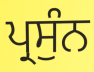
ਪ੍ਰਸੁੰਨ